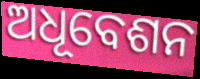
ଅଧୂବେଶନ